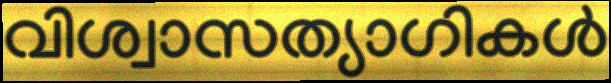
വിശ്വാസത്യാഗികൾ